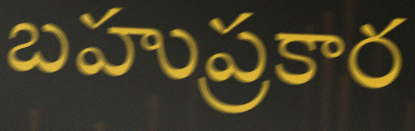
బహుప్రకార